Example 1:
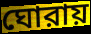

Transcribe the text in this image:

ঘোরায়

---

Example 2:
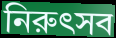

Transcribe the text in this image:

নিরুৎসব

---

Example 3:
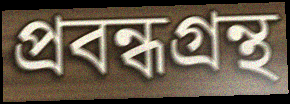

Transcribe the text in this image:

প্রবন্ধগ্রন্থ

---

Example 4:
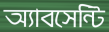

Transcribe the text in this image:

অ্যাবসেন্টি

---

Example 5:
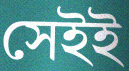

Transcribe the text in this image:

সেইই